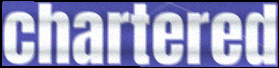
chartered